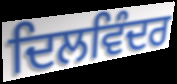
ਦਿਲਵਿੰਦਰ